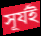
সূৰ্যই